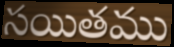
సయితము